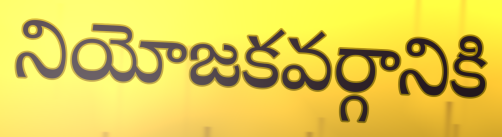
నియోజకవర్గానికి